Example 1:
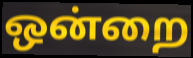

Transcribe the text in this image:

ஒன்றை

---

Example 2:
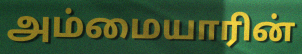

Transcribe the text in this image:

அம்மையாரின்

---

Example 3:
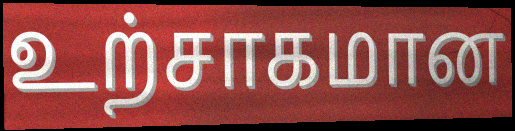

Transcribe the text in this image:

உற்சாகமான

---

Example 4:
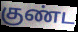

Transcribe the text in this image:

குண்ட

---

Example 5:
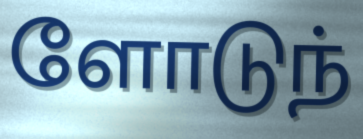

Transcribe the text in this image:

ளோடுந்